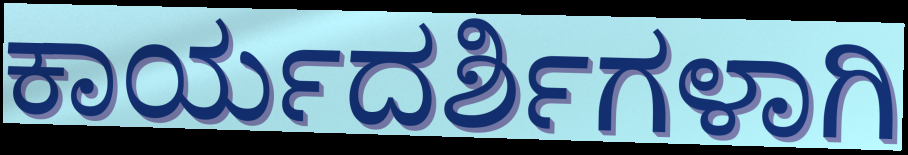
ಕಾರ್ಯದರ್ಶಿಗಳಾಗಿ